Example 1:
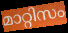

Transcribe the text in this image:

മാറ്റിസം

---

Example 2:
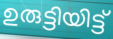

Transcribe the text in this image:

ഉരുട്ടിയിട്ട്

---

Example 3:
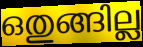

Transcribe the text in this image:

ഒതുങ്ങില്ല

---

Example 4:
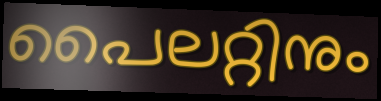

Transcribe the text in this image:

പൈലറ്റിനും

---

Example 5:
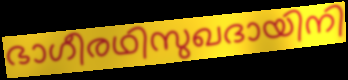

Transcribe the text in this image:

ഭാഗീരഥിസുഖദായിനി